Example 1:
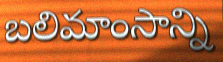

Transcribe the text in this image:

బలిమాంసాన్ని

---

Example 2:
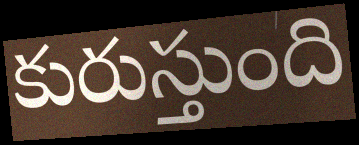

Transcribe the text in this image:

కురుస్తుంది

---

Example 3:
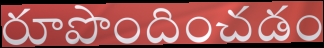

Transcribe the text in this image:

రూపొందించడం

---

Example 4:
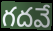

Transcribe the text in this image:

గదవే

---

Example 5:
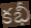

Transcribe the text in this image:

కభీ